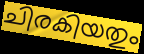
ചിരകിയതും